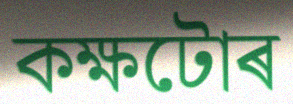
কক্ষটোৰ